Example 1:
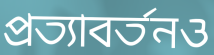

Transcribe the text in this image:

প্রত্যাবর্তনও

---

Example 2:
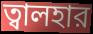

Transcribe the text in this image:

ত্বালহার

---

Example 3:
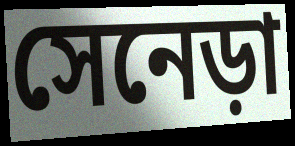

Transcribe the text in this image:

সেনেড়া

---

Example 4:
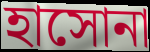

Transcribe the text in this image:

হাসোনা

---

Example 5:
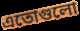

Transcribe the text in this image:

এতোগুলো